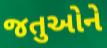
જતુઓને